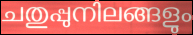
ചതുപ്പുനിലങ്ങളും